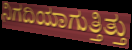
ನಿಗದಿಯಾಗುತ್ತಿತ್ತು